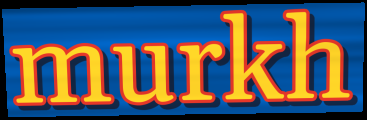
murkh